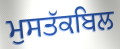
ਮੁਸਤੱਕਬਿਲ